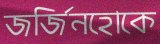
জর্জিনহোকে